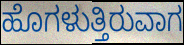
ಹೊಗಳುತ್ತಿರುವಾಗ